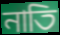
নাতি